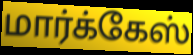
மார்க்கேஸ்